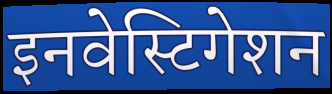
इनवेस्टिगेशन